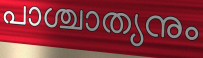
പാശ്ചാത്യനും